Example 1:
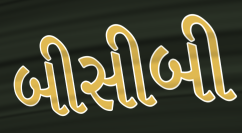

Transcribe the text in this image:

બીસીબી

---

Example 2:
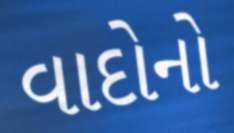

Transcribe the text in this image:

વાદોનો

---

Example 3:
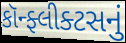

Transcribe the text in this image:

કૉન્ફ્લીક્ટસનું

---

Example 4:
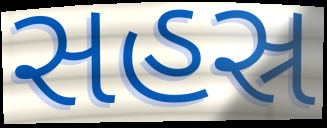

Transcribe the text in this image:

સહસ્ર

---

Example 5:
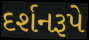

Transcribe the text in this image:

દર્શનરૂપે